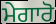
ਮੇਗਾਰੋ